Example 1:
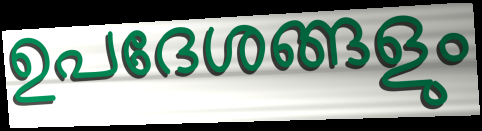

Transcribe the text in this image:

ഉപദേശങ്ങളും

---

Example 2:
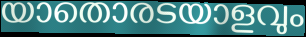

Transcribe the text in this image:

യാതൊരടയാളവും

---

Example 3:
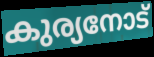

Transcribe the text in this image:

കുര്യനോട്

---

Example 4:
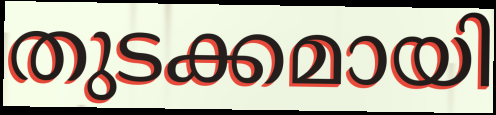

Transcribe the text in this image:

തുടക്കമായി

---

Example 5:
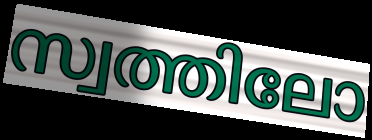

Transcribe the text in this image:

സ്വത്തിലോ